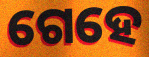
ଗେହେ